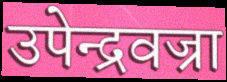
उपेन्द्रवज्रा